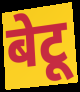
बेटू